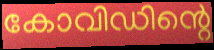
കോവിഡിന്റെ